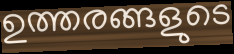
ഉത്തരങ്ങളുടെ